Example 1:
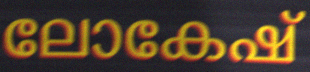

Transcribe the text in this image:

ലോകേഷ്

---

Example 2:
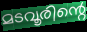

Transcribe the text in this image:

മടവൂരിന്റെ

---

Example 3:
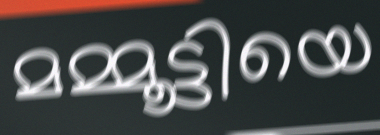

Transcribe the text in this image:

മമ്മൂട്ടിയെ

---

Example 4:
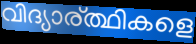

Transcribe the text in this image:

വിദ്യാര്ത്ഥികളെ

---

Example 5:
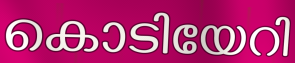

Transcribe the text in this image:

കൊടിയേറി